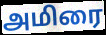
அமிரை